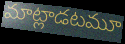
మాట్లాడటమూ